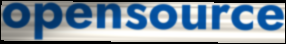
opensource